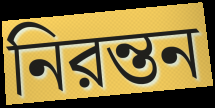
নিরন্তন